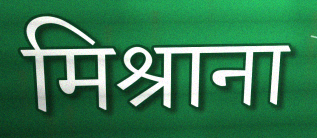
मिश्राना